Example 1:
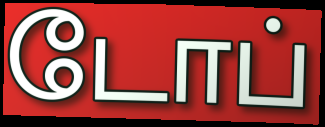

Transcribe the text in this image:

டோப்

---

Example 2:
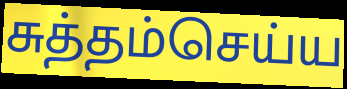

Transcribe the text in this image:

சுத்தம்செய்ய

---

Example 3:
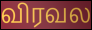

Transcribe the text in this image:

விரவல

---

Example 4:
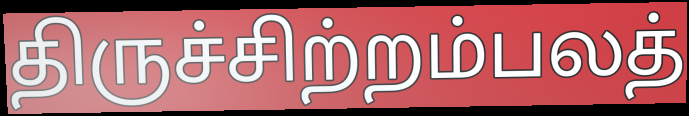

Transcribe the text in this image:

திருச்சிற்றம்பலத்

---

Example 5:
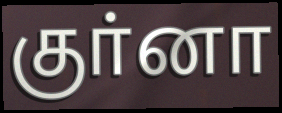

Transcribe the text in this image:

குர்னா